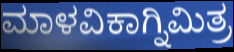
ಮಾಳವಿಕಾಗ್ನಿಮಿತ್ರ